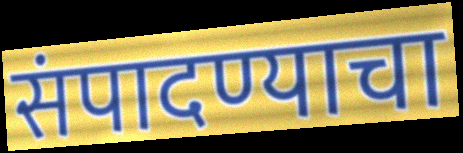
संपादण्याचा